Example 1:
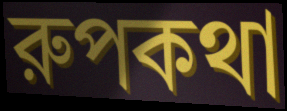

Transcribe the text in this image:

রুপকথা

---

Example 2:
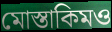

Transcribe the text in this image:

মোস্তাকিমও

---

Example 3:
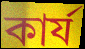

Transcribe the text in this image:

কার্য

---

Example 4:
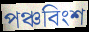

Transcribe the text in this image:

পঞ্চবিংশ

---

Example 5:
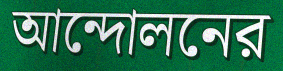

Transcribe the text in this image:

আন্দোলনের